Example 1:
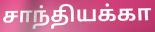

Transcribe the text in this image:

சாந்தியக்கா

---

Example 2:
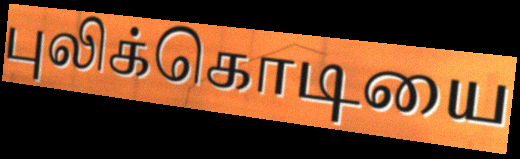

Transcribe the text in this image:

புலிக்கொடியை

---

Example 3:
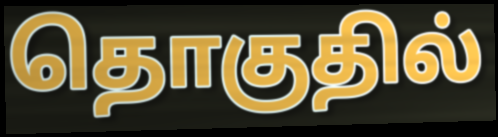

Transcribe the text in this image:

தொகுதில்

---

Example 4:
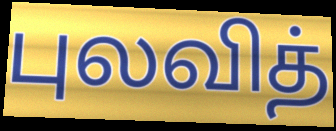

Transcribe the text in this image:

புலவித்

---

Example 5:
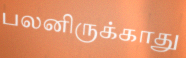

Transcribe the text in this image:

பலனிருக்காது